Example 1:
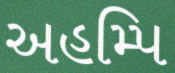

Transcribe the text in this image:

અહમ્પિ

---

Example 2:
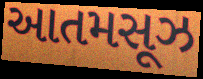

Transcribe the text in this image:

આતમસૂઝ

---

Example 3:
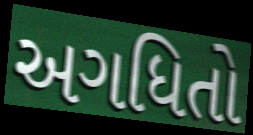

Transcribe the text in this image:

અગધિતો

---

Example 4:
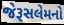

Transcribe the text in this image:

જેરૂસલેમનો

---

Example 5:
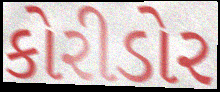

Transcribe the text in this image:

કોરીડોર